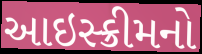
આઇસ્ક્રીમનો